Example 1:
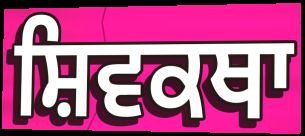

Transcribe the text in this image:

ਸ਼ਿਵਕਥਾ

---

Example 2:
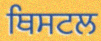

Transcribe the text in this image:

ਥਿਸਟਲ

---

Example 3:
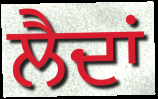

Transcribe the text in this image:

ਲੈਦਾਂ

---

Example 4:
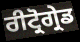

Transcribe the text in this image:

ਰੀਟ੍ਰੋਗ੍ਰੇਡ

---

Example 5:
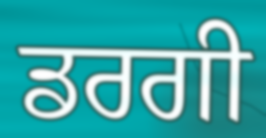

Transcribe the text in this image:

ਡਰਗੀ